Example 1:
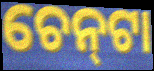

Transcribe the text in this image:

ଚେନ୍‌ଟା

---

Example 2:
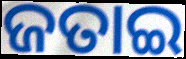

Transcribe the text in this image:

ଜତାଇ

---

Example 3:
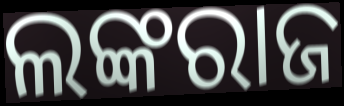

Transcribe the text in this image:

ଲଙ୍କରାଜ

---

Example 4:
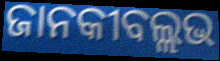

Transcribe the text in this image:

ଜାନକୀବଲ୍ଲଭ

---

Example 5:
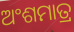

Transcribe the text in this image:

ଅଂଶମାତ୍ର